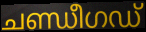
ചണ്ഡീഗഡ്